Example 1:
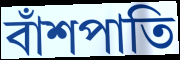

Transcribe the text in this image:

বাঁশপাতি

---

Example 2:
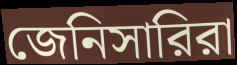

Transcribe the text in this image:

জেনিসারিরা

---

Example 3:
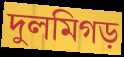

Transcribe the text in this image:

দুলমিগড়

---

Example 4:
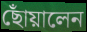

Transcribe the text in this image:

ছোঁয়ালেন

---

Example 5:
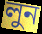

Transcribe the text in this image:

লুন